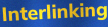
Interlinking